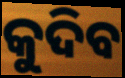
କୁଦିବ